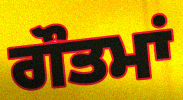
ਗੌਤਮਾਂ